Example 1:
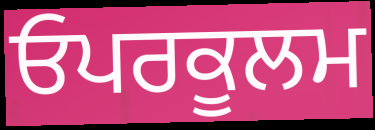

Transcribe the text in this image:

ਓਪਰਕੂਲਮ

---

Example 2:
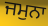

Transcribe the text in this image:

ਜਮੁਨਾ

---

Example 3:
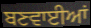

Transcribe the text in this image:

ਬਣਵਾਈਆਂ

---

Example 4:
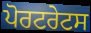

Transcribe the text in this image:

ਪੋਰਟਰੇਟਸ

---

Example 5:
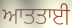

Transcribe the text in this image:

ਆਤਤਾਈ